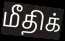
மீதிக்